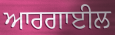
ਆਰਗਾਈਲ